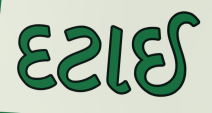
દટાઈ